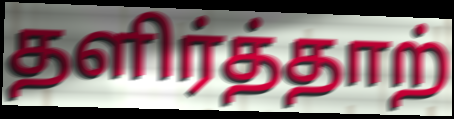
தளிர்த்தாற்